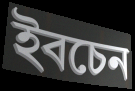
ইবচেন